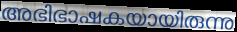
അഭിഭാഷകയായിരുന്നു